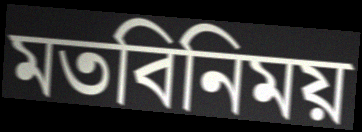
মতবিনিময়